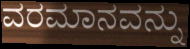
ವರಮಾನವನ್ನು